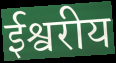
ईश्वरीय